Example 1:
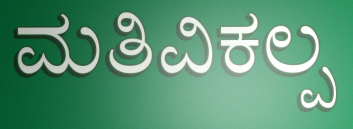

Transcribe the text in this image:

ಮತಿವಿಕಲ್ಪ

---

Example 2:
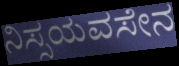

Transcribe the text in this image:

ನಿಸ್ಸಯವಸೇನ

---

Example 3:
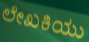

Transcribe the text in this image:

ಲೇಖಕಿಯು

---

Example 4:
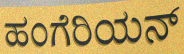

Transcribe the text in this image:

ಹಂಗೆರಿಯನ್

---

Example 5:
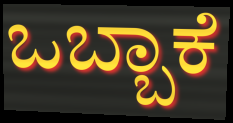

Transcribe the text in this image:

ಒಬ್ಬಾಕೆ